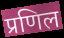
प्रणिल